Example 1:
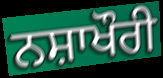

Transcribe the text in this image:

ਨਸ਼ਾਖੌਰੀ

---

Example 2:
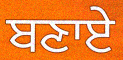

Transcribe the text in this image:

ਬਣਾਏ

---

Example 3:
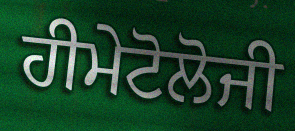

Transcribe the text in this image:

ਹੀਮੇਟੋਲੋਜੀ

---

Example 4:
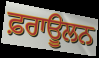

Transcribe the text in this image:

ਫ਼ਰਾਊਲਨ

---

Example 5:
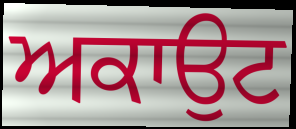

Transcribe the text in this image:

ਅਕਾਉਟ